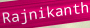
Rajnikanth